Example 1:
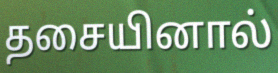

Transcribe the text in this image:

தசையினால்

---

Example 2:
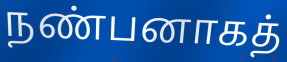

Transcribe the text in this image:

நண்பனாகத்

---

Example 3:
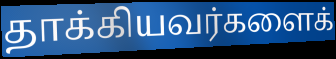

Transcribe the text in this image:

தாக்கியவர்களைக்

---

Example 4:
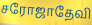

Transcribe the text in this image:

சரோஜாதேவி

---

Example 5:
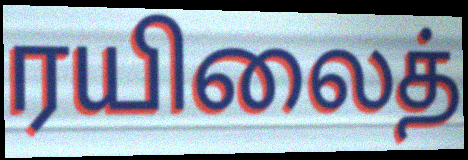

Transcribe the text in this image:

ரயிலைத்